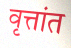
वृत्तांत